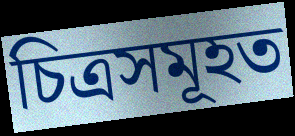
চিত্ৰসমূহত